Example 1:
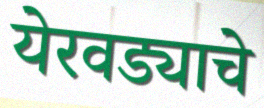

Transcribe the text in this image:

येरवड्याचे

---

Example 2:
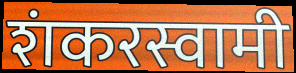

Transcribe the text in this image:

शंकरस्वामी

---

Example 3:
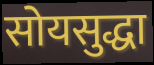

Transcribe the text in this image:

सोयसुद्धा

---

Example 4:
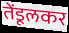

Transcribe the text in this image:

तेंडूलकर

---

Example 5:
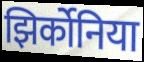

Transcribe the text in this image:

झिर्कोनिया